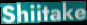
Shiitake